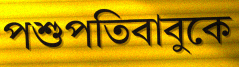
পশুপতিবাবুকে